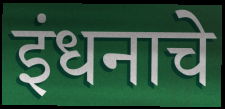
इंधनाचे